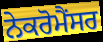
ਨੇਕਰੋਮੈਂਸਰ